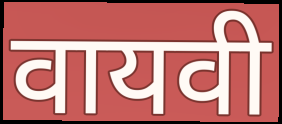
वायवी